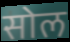
सोल